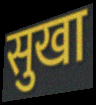
सुखा